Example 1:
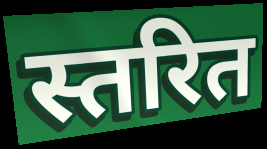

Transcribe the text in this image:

स्तरित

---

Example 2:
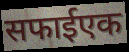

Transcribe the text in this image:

सफाईएक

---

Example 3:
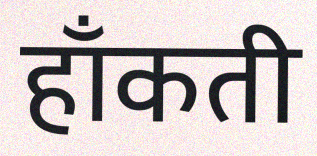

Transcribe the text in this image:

हाँकती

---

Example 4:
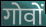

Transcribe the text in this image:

गोवों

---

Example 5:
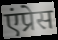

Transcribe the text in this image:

एंप्रेस